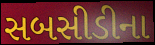
સબસીડીના